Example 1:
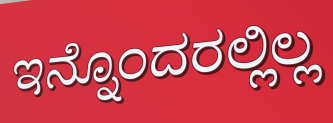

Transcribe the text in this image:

ಇನ್ನೊಂದರಲ್ಲಿಲ್ಲ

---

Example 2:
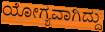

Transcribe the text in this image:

ಯೋಗ್ಯವಾಗಿದ್ದು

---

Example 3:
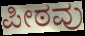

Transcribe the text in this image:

ಪೀಠವು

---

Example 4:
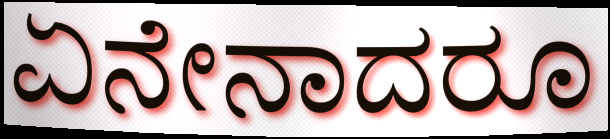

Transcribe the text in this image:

ಏನೇನಾದರೂ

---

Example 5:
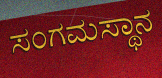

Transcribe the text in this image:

ಸಂಗಮಸ್ಥಾನ